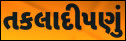
તકલાદીપણું